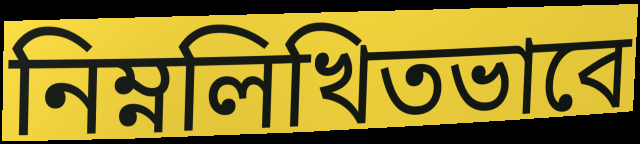
নিম্নলিখিতভাবে